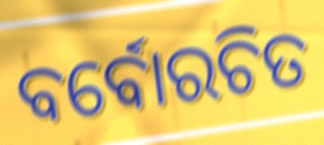
ବର୍ବୋରଚିତ